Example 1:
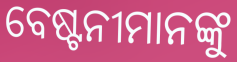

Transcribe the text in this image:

ବେଷ୍ଟନୀମାନଙ୍କୁ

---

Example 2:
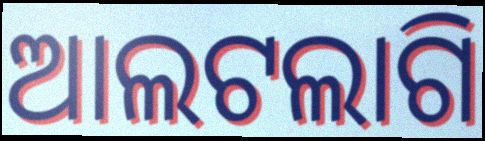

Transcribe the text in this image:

ଆଲଟଲାଗି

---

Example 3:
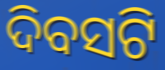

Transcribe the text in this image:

ଦିବସଟି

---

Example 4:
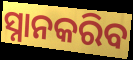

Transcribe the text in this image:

ସ୍ନାନକରିବ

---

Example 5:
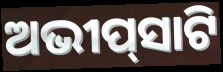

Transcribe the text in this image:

ଅଭୀପ୍‌ସାଟି